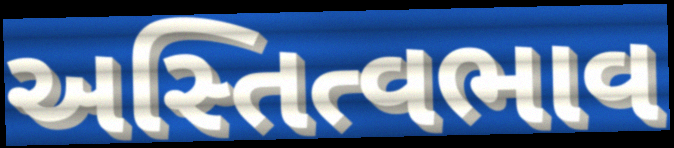
અસ્તિત્વભાવ